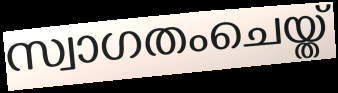
സ്വാഗതംചെയ്ത്